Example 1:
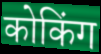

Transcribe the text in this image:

कोकिंग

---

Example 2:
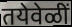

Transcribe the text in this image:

तयेवेळीं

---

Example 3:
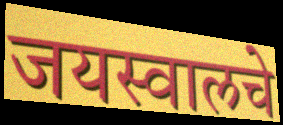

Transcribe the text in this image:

जयस्वालचे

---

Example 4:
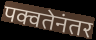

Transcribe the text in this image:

पक्वतेनंतर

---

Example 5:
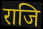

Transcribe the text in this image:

राजि